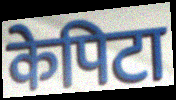
केपिटा